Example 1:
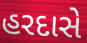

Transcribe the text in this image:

હરદાસે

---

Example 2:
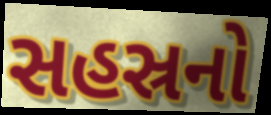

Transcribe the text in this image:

સહસ્રનો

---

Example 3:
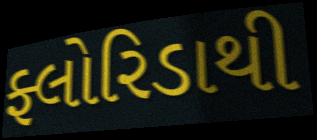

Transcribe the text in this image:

ફ્લોરિડાથી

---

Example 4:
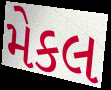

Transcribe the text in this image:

મેકલ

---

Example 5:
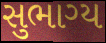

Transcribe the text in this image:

સુભાગ્ય